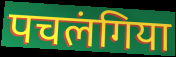
पचलंगिया